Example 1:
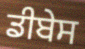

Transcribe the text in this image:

ਡੀਬੇਸ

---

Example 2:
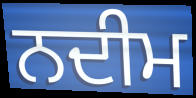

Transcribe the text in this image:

ਨਦੀਮ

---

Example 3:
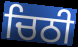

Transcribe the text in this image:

ਚਿਠੀ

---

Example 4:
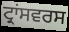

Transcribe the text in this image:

ਟ੍ਰਾਂਸਵਰਸ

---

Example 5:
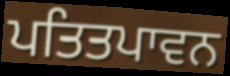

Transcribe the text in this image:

ਪਤਿਤਪਾਵਨ